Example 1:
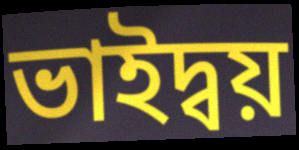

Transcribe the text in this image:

ভাইদ্বয়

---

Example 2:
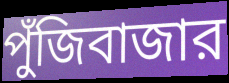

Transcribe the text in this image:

পুঁজিবাজার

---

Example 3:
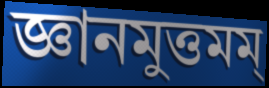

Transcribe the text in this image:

জ্ঞানমুত্তমম্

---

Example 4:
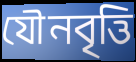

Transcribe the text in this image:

যৌনবৃত্তি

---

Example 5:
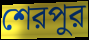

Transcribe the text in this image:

শেরপুর